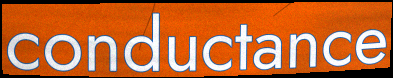
conductance